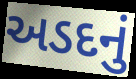
અડદનું